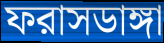
ফরাসডাঙ্গা